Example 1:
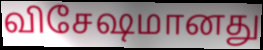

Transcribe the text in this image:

விசேஷமானது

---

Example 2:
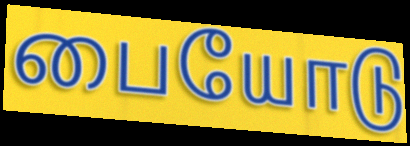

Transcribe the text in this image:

பையோடு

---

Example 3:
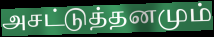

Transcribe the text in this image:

அசட்டுத்தனமும்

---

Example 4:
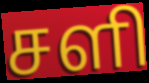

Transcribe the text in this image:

சளி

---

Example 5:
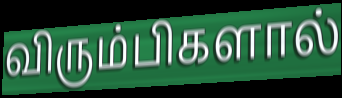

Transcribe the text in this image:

விரும்பிகளால்